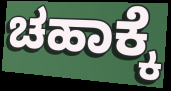
ಚಹಾಕ್ಕೆ